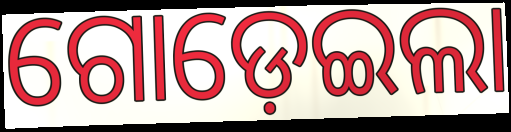
ଗୋଡ଼େଇଲା